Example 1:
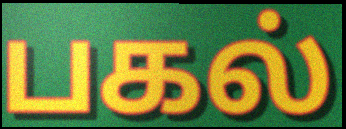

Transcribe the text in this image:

பகல்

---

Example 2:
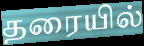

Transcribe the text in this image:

தரையில்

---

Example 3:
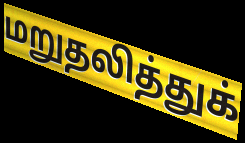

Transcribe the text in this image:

மறுதலித்துக்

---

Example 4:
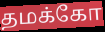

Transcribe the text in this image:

தமக்கோ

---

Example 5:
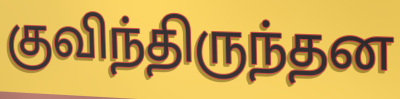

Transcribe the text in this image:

குவிந்திருந்தன